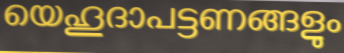
യെഹൂദാപട്ടണങ്ങളും